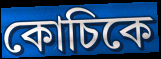
কোচিকে